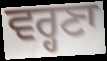
ਵਰ੍ਹਣਾ